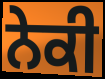
ਨੇਕੀ